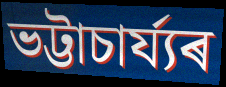
ভট্টাচাৰ্য্যৰ